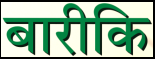
बारीकि